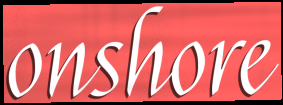
onshore